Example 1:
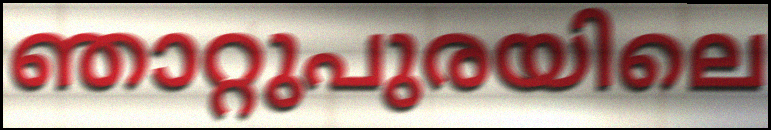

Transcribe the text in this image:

ഞാറ്റുപുരയിലെ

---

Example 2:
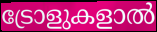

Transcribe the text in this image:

ട്രോളുകളാൽ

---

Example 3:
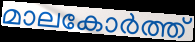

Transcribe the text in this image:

മാലകോർത്ത്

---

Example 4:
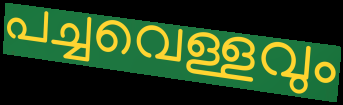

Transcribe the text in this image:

പച്ചവെള്ളവും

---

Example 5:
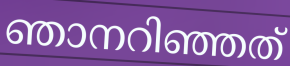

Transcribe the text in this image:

ഞാനറിഞ്ഞത്